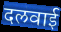
दलवाई